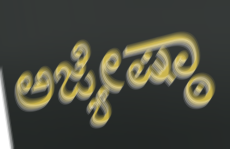
ಅಜ್ಯೇಷ್ಠಾ